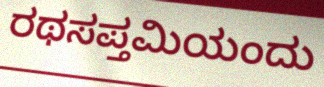
ರಥಸಪ್ತಮಿಯಂದು